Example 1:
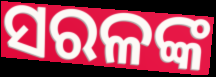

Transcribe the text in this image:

ସରଳଙ୍କ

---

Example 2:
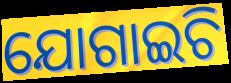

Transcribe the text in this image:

ଯୋଗାଇଚି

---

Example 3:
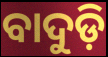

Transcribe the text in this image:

ବାଦୁଡ଼ି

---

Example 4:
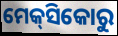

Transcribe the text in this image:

ମେକ୍‌ସିକୋରୁ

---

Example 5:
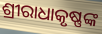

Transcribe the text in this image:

ଶ୍ରୀରାଧାକୃଷ୍ଣଙ୍କ